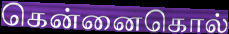
கென்னைகொல்